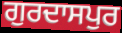
ਗੁਰਦਾਸਪੁਰ